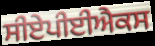
ਸੀਏਪੀਈਐਕਸ